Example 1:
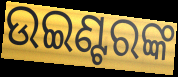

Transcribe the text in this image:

ଉଇଣ୍ଟରଙ୍କ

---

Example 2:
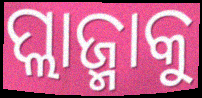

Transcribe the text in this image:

ପ୍ଲାଜ୍ମାକୁ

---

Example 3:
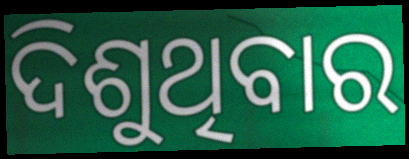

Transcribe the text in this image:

ଦିଶୁଥିବାର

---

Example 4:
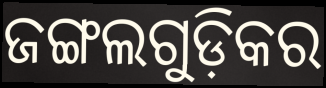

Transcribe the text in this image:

ଜଙ୍ଗଲଗୁଡ଼ିକର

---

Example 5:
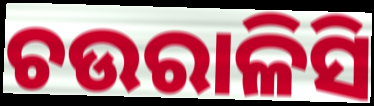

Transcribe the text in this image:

ଚଉରାଳିସି